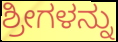
ಶ್ರೀಗಳನ್ನು